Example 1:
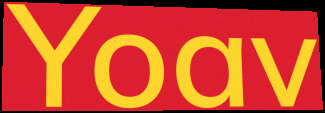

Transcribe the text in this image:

Yoav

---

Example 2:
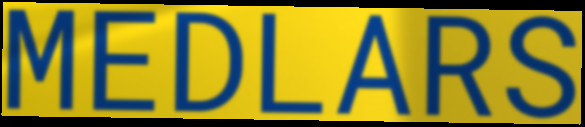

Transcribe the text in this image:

MEDLARS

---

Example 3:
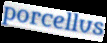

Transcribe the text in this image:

porcellus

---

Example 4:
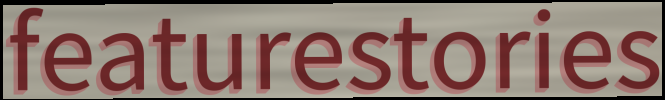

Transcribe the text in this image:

featurestories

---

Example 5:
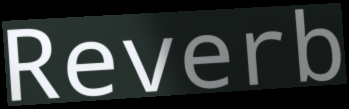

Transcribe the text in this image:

Reverb